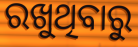
ରଖୁଥିବାରୁ